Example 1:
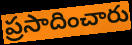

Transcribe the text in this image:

ప్రసాదించారు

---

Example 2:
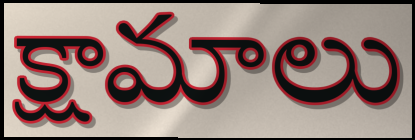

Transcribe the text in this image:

క్షామాలు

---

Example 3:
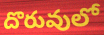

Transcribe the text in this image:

దొరువులో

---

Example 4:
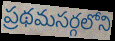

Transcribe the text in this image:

ప్రథమసర్గలోని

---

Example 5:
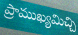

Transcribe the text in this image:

ప్రాముఖ్యమిచ్చి